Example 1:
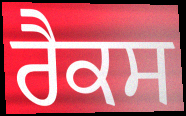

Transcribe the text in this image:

ਰੈਕਸ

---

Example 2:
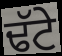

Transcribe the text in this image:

ਢੱਟੇ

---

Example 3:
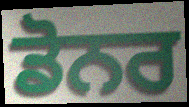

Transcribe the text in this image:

ਡੋਨਰ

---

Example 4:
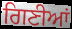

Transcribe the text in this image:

ਗਿਣੀਆਂ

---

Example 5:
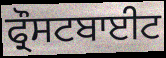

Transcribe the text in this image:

ਫ੍ਰੌਸਟਬਾਈਟ